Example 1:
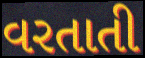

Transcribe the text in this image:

વરતાતી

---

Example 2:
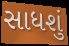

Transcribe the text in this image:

સાધશું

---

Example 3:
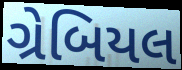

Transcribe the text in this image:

ગ્રેબિયલ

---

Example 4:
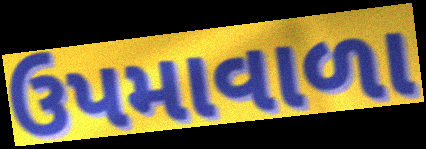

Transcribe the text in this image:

ઉપમાવાળા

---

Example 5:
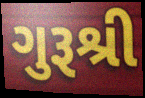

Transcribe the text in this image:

ગુરૂશ્રી